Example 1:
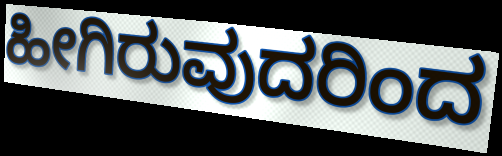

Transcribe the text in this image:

ಹೀಗಿರುವುದರಿಂದ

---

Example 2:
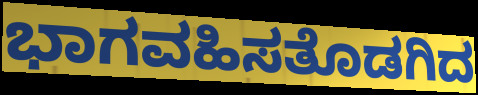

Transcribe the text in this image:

ಭಾಗವಹಿಸತೊಡಗಿದ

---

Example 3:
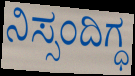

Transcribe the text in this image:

ನಿಸ್ಸಂದಿಗ್ಧ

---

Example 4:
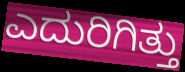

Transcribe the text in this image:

ಎದುರಿಗಿತ್ತು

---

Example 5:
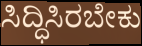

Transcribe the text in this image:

ಸಿದ್ಧಿಸಿರಬೇಕು